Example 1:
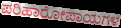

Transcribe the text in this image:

ಪರಿಹಾರೋಪಾಯಗಳ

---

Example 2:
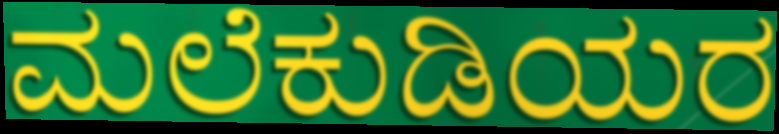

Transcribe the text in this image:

ಮಲೆಕುಡಿಯರ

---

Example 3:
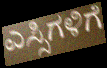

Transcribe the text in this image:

ಎಸ್ಸಿಗಳಿಗೆ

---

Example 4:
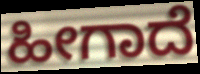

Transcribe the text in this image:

ಹೀಗಾದೆ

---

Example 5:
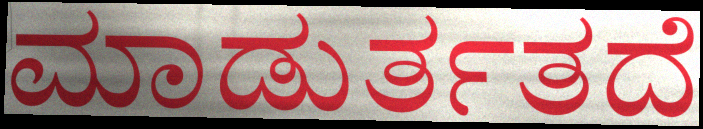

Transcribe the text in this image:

ಮಾಡುರ್ತತದೆ